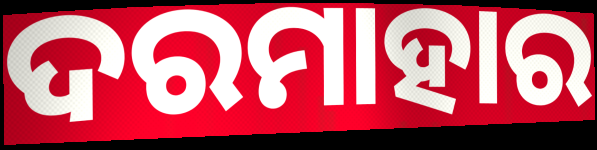
ଦରମାହାର